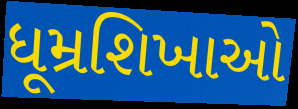
ધૂમ્રશિખાઓ